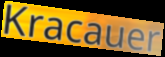
Kracauer